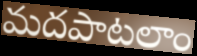
మదపాటలాం